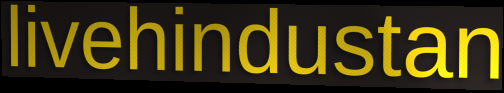
livehindustan